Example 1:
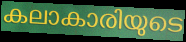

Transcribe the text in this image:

കലാകാരിയുടെ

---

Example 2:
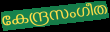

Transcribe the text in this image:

കേന്ദ്രസംഗീത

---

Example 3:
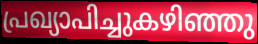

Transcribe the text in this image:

പ്രഖ്യാപിച്ചുകഴിഞ്ഞു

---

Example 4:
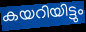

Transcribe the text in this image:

കയറിയിട്ടും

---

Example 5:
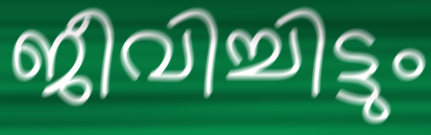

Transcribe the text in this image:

ജീവിച്ചിട്ടും